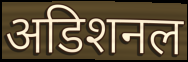
अडिशनल